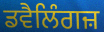
ਡਵੈਲਿੰਗਜ਼